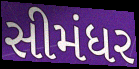
સીમંધર